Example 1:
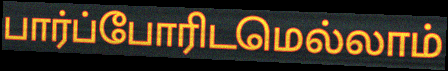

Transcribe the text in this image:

பார்ப்போரிடமெல்லாம்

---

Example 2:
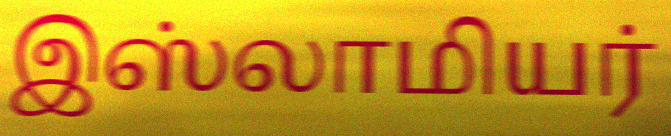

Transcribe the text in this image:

இஸ்லாமியர்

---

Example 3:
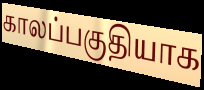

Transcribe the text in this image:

காலப்பகுதியாக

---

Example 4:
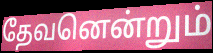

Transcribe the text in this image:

தேவனென்றும்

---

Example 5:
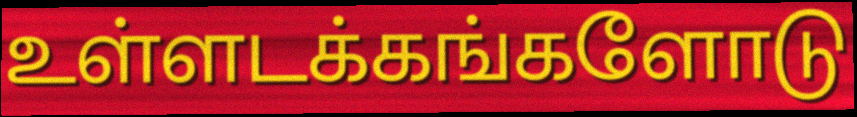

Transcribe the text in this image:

உள்ளடக்கங்களோடு